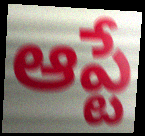
ఆప్టే